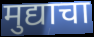
मुद्याचा